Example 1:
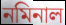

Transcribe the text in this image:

নমিনাল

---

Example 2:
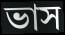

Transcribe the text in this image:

ভাস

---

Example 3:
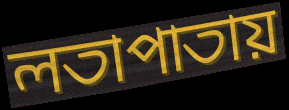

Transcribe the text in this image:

লতাপাতায়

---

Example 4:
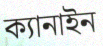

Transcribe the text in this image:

ক্যানাইন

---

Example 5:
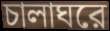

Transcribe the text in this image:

চালাঘরে